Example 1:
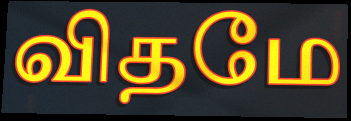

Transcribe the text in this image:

விதமே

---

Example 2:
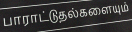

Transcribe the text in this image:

பாராட்டுதல்களையும்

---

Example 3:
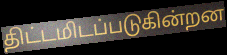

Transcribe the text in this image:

திட்டமிடப்படுகின்றன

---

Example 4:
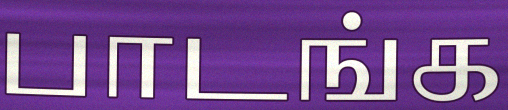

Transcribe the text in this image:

பாடங்க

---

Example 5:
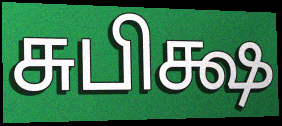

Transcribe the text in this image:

சுபிக்ஷ